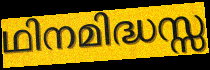
ഥിനമിദ്ധസ്സ